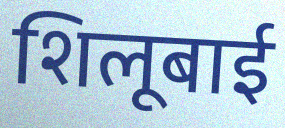
शिलूबाई